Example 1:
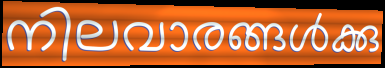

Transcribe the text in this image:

നിലവാരങ്ങൾക്കു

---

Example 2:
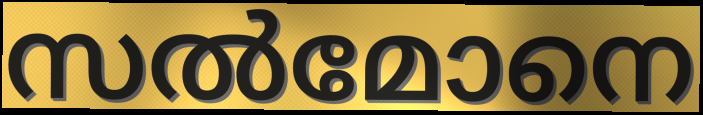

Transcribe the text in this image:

സൽമോനെ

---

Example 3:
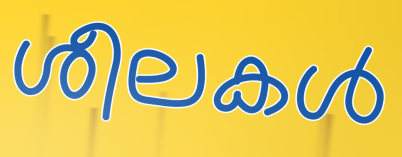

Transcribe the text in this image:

ശീലകൾ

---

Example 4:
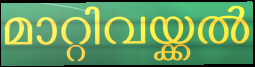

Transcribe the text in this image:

മാറ്റിവയ്ക്കൽ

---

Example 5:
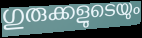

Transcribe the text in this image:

ഗുരുക്കളുടെയും